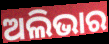
ଅଲିଭାର